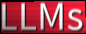
LLMs